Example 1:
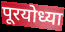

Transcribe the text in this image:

पूरयोध्या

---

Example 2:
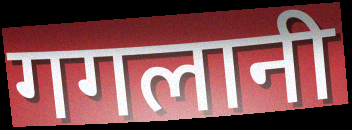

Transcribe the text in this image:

गगलानी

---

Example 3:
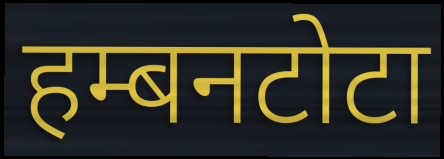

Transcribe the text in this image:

हम्बनटोटा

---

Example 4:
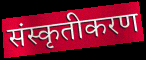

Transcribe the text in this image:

संस्कृतीकरण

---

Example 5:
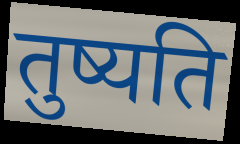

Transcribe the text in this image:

तुष्यति